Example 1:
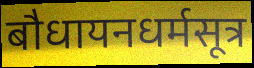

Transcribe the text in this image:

बौधायनधर्मसूत्र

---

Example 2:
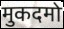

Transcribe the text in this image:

मुकदमो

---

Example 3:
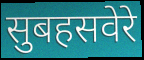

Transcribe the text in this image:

सुबहसवेरे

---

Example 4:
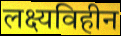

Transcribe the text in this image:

लक्ष्यविहीन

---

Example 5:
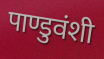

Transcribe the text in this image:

पाण्डुवंशी